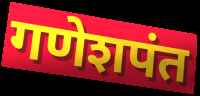
गणेशपंत